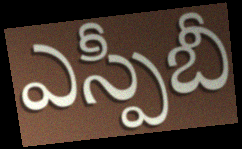
ఎస్పీబీ